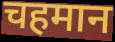
चहमान